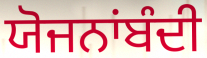
ਯੋਜਨਾਂਬੰਦੀ